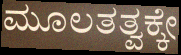
ಮೂಲತತ್ವಕ್ಕೇ